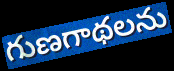
గుణగాథలను